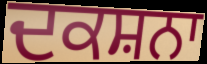
ਦਕਸ਼ਨਾ